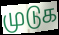
முடுக